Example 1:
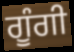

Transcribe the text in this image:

ਗੂੰਗੀ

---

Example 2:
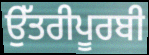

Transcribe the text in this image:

ਉੱਤਰੀਪੂਰਬੀ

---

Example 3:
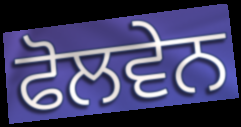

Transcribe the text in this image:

ਫੋਲਵੇਨ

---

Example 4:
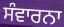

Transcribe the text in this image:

ਸੰਵਾਰਨਾ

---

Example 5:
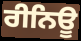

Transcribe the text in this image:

ਰੀਨਿਊ